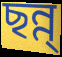
ছন্ন্